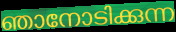
ഞാനോടിക്കുന്ന